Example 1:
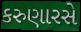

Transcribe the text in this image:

કરુણારસે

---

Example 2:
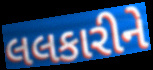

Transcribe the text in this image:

લલકારીને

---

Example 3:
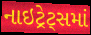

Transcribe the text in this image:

નાઇટ્રેટ્સમાં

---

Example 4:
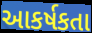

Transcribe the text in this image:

આકર્ષકતા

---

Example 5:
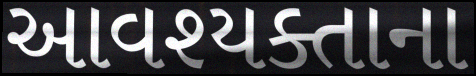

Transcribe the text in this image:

આવશ્યક્તાના